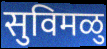
सुविमळु